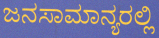
ಜನಸಾಮಾನ್ಯರಲ್ಲಿ